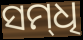
ସମ୍‌ଧି